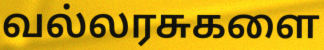
வல்லரசுகளை